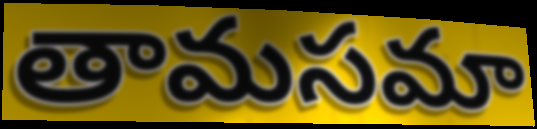
తామసమా